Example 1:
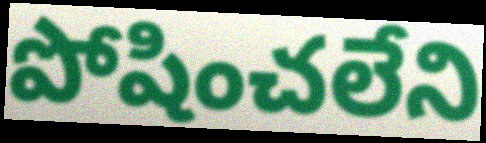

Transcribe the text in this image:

పోషించలేని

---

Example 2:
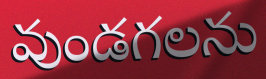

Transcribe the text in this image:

వుండగలను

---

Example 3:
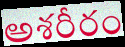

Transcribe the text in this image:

అశరీరం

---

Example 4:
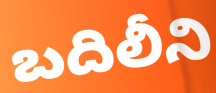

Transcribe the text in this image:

బదిలీని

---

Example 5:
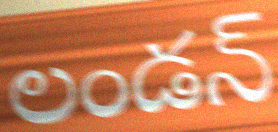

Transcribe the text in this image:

లండన్